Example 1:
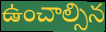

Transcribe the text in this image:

ఉంచాల్సిన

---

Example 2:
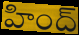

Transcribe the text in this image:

హింద్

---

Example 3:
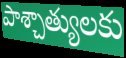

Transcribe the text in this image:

పాశ్చాత్యులకు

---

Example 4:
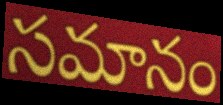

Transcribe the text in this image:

సమానం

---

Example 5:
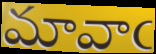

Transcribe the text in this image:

మావాఁ